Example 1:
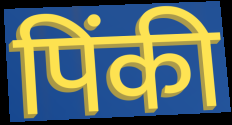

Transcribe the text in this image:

पिंकी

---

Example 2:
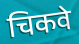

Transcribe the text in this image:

चिकवे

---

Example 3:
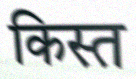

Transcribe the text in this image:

किस्त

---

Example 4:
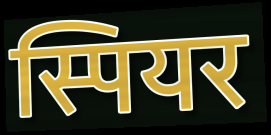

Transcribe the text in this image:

स्पियर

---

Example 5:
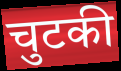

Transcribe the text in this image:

चुटकी